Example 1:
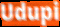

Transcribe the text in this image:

Udupi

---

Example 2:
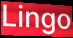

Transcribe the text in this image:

Lingo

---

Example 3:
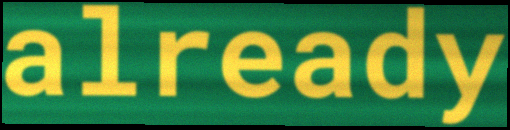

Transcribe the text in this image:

already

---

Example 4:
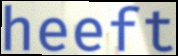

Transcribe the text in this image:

heeft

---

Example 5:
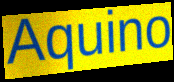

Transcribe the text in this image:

Aquino